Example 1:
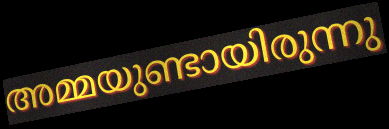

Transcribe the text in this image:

അമ്മയുണ്ടായിരുന്നു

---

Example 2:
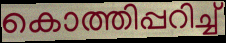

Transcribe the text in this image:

കൊത്തിപ്പറിച്ച്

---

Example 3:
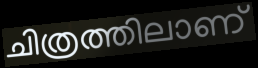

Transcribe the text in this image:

ചിത്രത്തിലാണ്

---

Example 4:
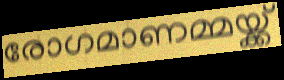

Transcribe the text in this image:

രോഗമാണമ്മയ്ക്ക്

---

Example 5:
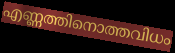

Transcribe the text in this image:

എണ്ണത്തിനൊത്തവിധം